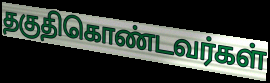
தகுதிகொண்டவர்கள்